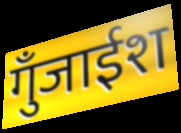
गुँजाईश